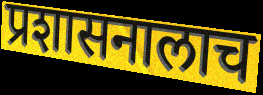
प्रशासनालाच